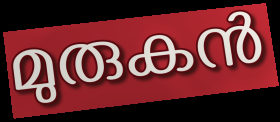
മുരുകൻ